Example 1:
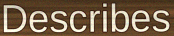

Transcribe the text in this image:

Describes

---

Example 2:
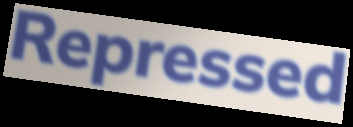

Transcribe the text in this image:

Repressed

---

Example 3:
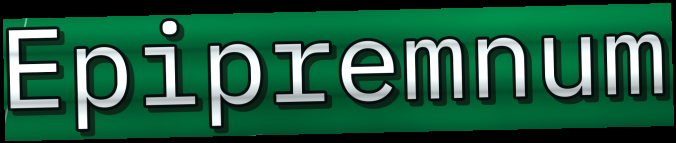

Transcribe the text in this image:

Epipremnum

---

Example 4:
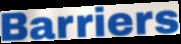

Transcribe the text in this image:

Barriers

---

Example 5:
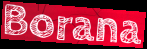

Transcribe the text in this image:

Borana